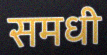
समधी